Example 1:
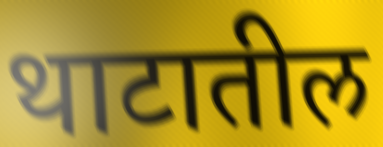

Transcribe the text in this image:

थाटातील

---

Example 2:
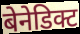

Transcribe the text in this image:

बेनेडिक्ट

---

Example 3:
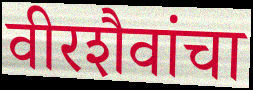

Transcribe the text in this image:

वीरशैवांचा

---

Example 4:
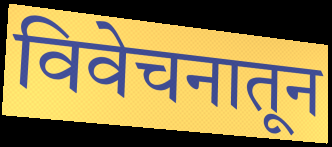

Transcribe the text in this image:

विवेचनातून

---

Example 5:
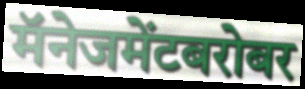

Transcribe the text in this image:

मॅनेजमेंटबरोबर